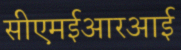
सीएमईआरआई